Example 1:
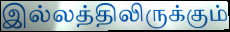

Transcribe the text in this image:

இல்லத்திலிருக்கும்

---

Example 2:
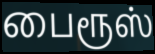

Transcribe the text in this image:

பைரூஸ்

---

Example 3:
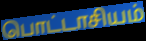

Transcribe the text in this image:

பொட்டாசியம்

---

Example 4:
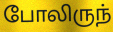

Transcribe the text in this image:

போலிருந்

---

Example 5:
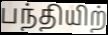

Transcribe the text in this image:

பந்தியிற்